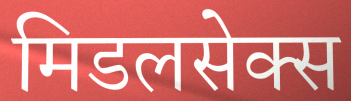
मिडलसेक्स